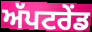
ਅੱਪਟਰੇਂਡ